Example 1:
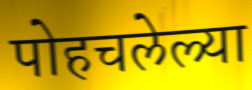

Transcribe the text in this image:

पोहचलेल्या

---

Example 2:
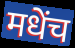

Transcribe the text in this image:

मधेंच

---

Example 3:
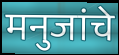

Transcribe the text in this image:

मनुजांचे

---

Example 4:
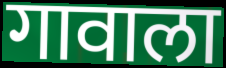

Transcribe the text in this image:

गावाला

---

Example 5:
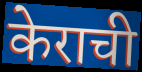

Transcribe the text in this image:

केराची